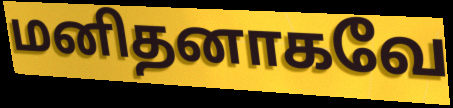
மனிதனாகவே